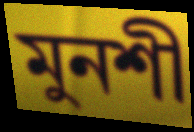
মুনশী